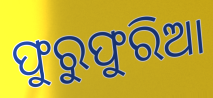
ଫୁରୁଫୁରିଆ